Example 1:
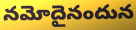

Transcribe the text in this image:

నమోదైనందున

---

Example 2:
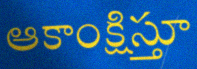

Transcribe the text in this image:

ఆకాంక్షిస్తూ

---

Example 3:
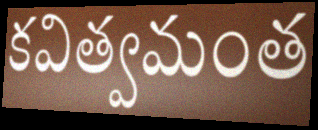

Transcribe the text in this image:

కవిత్వమంత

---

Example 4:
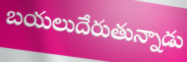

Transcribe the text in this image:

బయలుదేరుతున్నాడు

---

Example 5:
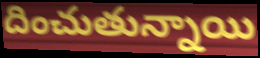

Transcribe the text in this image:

దించుతున్నాయి